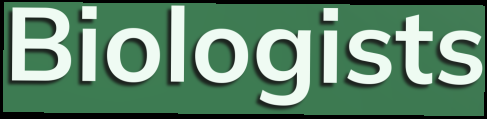
Biologists